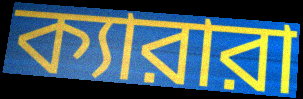
ক্যারারা